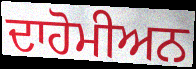
ਦਾਹੋਮੀਅਨ